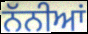
ਨੱਨੀਆਂ